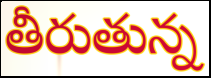
తీరుతున్న